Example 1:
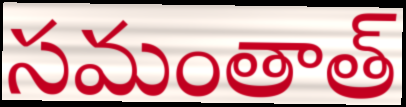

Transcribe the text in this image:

సమంతాత్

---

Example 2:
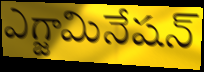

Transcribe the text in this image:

ఎగ్జామినేషన్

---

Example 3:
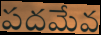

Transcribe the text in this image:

పదమేవ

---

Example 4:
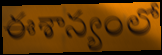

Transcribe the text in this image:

ఈశాన్యంలో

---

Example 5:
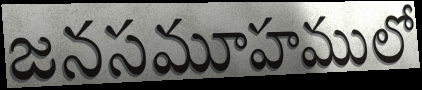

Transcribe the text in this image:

జనసమూహములో